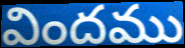
విందము